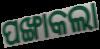
ପଙ୍ଖାକଲା